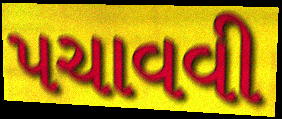
પચાવવી